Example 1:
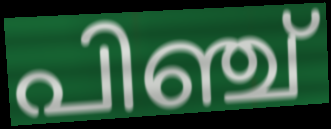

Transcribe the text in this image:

പിഞ്ച്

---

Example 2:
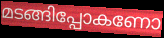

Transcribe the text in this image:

മടങ്ങിപ്പോകണോ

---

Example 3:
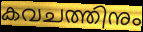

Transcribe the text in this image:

കവചത്തിനും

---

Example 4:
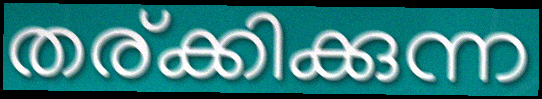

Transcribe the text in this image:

തര്ക്കിക്കുന്ന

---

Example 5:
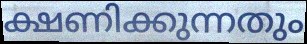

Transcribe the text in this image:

ക്ഷണിക്കുന്നതും